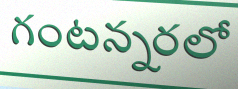
గంటన్నరలో